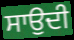
ਸਾਉਦੀ